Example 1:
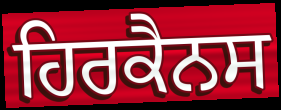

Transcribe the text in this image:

ਹਿਰਕੈਨਸ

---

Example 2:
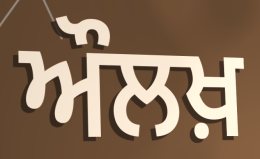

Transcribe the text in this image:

ਔਲਖ਼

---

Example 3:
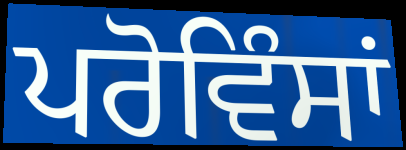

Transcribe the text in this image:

ਪਰੋਵਿੰਸਾਂ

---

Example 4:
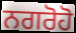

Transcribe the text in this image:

ਨਗਰੋਹੋ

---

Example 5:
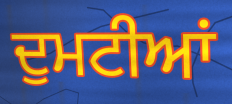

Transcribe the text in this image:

ਦੁਮਟੀਆਂ